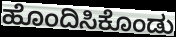
ಹೊಂದಿಸಿಕೊಂಡು